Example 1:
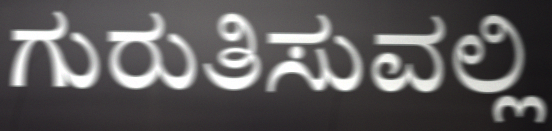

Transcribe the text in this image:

ಗುರುತಿಸುವಲ್ಲಿ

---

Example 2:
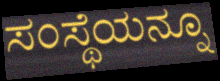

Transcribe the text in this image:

ಸಂಸ್ಥೆಯನ್ನೂ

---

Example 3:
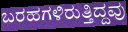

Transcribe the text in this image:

ಬರಹಗಳಿರುತ್ತಿದ್ದವು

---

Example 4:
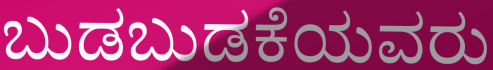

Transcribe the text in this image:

ಬುಡಬುಡಕೆಯವರು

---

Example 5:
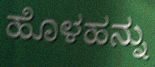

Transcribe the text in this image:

ಹೊಳಹನ್ನು